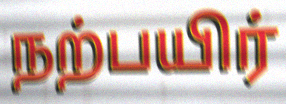
நற்பயிர்